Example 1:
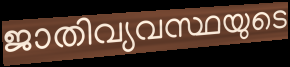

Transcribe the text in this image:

ജാതിവ്യവസ്ഥയുടെ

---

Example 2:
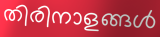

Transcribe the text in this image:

തിരിനാളങ്ങൾ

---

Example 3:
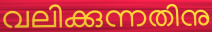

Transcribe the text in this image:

വലിക്കുന്നതിനു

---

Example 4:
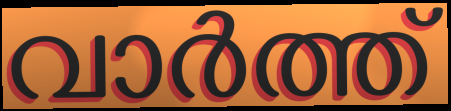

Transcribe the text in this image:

വാർത്ത്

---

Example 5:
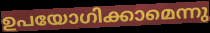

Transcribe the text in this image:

ഉപയോഗിക്കാമെന്നു